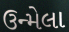
ઉન્મેલા